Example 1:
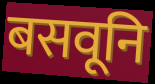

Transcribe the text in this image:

बसवूनि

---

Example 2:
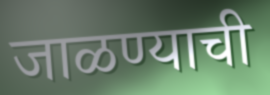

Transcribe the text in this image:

जाळण्याची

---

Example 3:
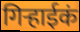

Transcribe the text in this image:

गिऱ्हाईकं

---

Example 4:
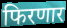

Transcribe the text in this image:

फिरणार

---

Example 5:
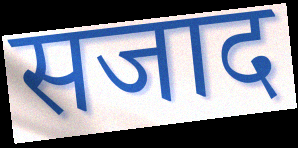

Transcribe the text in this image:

सजाद